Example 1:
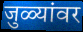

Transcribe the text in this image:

जुळ्यांवर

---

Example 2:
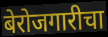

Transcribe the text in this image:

बेरोजगारीचा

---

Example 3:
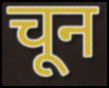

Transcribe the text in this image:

चून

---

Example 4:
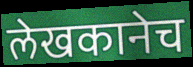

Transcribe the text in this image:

लेखकानेच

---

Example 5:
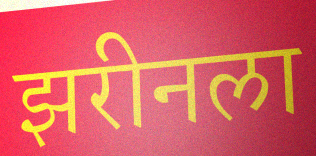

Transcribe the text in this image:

झरीनला